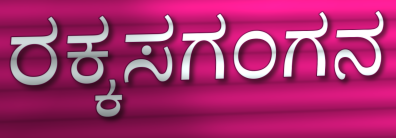
ರಕ್ಕಸಗಂಗನ